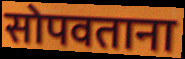
सोपवताना